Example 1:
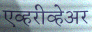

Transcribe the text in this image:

एव्हरीव्हेअर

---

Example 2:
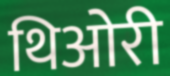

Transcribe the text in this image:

थिओरी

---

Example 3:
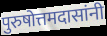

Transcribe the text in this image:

पुरुषोत्तमदासांनी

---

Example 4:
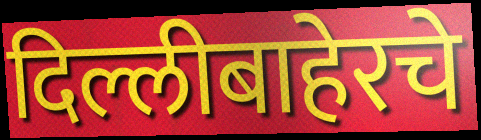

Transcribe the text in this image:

दिल्लीबाहेरचे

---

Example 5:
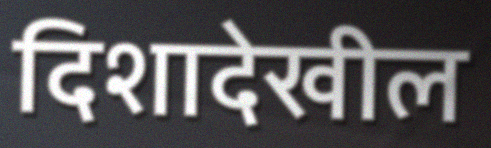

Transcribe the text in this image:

दिशादेखील